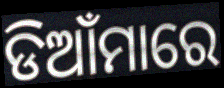
ଡିଆଁମାରେ